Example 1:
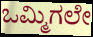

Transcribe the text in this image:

ಒಮ್ಮಿಗಲೇ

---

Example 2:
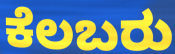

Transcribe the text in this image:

ಕೆಲಬರು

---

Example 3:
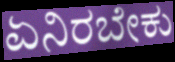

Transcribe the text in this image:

ಏನಿರಬೇಕು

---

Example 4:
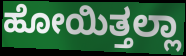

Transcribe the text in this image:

ಹೋಯಿತ್ತಲ್ಲಾ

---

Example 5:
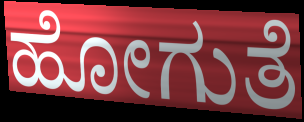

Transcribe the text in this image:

ಹೋಗುತೆ